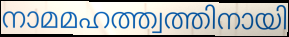
നാമമഹത്ത്വത്തിനായി